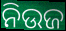
ନିଉଜ